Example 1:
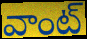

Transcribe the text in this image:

వాంట్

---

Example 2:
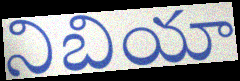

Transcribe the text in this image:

నిబియా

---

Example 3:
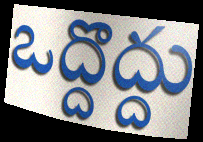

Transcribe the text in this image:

ఒద్దొద్దు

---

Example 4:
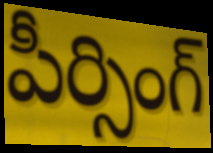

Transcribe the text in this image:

పీర్సింగ్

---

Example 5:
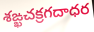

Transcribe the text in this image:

శఙ్ఖచక్రగదాధర